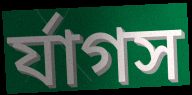
র্যাগস